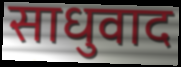
साधुवाद